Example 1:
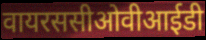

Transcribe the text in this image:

वायरससीओवीआईडी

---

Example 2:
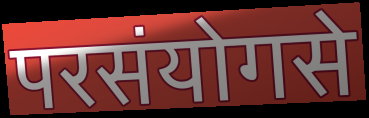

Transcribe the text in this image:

परसंयोगसे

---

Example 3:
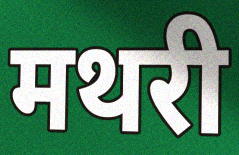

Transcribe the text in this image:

मथरी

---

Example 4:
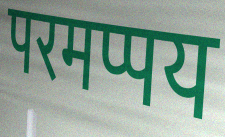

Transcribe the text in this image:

परमप्पय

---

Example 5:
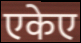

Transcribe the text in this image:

एकेए